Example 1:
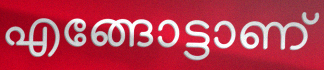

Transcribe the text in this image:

എങ്ങോട്ടാണ്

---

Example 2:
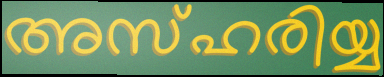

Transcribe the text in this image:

അസ്ഹരിയ്യ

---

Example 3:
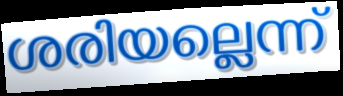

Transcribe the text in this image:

ശരിയല്ലെന്ന്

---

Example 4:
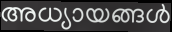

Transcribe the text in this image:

അധ്യായങ്ങൾ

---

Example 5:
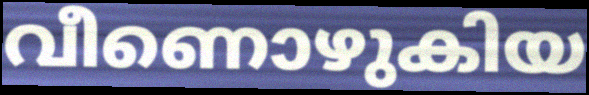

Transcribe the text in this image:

വീണൊഴുകിയ